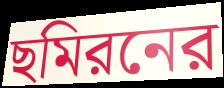
ছমিরনের